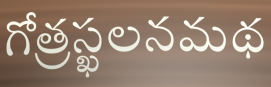
గోత్రస్ఖలనమథ